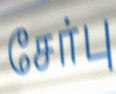
சேர்பு